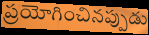
ప్రయోగించినప్పుడు